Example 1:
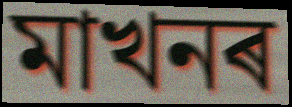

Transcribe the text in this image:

মাখনৰ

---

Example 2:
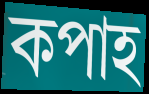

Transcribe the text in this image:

কপাহ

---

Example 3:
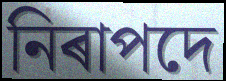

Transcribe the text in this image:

নিৰাপদে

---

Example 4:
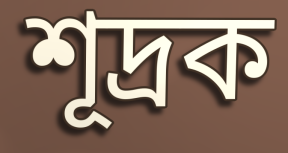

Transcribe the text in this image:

শূদ্ৰক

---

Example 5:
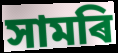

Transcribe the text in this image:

সামৰি